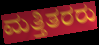
ಮತ್ತಿತರರು